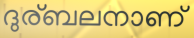
ദുര്ബലനാണ്